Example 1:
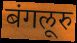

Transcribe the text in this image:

बंगलूरु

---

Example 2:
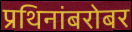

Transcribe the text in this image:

प्रथिनांबरोबर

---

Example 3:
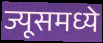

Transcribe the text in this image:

ज्यूसमध्ये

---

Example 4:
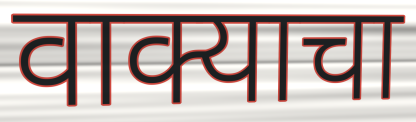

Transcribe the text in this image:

वाक्याचा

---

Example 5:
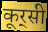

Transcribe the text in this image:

कूर्सी